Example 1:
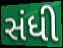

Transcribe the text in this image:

સંધી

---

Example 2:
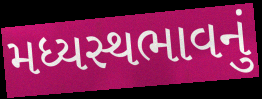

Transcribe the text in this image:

મધ્યસ્થભાવનું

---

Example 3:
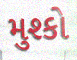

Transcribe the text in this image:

મુશ્કો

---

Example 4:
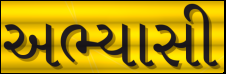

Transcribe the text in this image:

અભ્યાસી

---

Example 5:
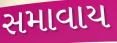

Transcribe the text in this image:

સમાવાય